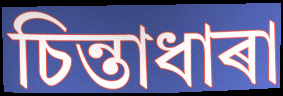
চিন্তাধাৰা